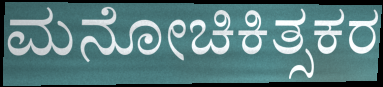
ಮನೋಚಿಕಿತ್ಸಕರ